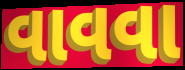
વાવવા